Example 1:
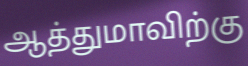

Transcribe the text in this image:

ஆத்துமாவிற்கு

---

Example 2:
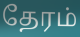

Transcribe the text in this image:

தேரம்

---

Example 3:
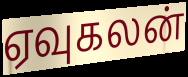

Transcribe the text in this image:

ஏவுகலன்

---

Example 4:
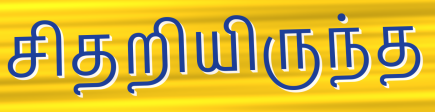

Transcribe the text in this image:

சிதறியிருந்த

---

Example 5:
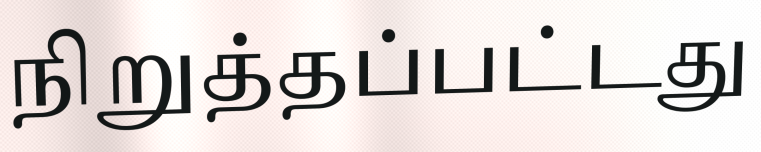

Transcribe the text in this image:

நிறுத்தப்பட்டது